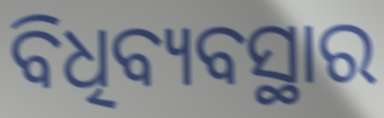
ବିଧିବ୍ୟବସ୍ଥାର